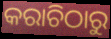
କରାଚିଠାରୁ